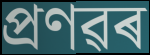
প্ৰণৱৰ